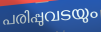
പരിപ്പുവടയും